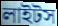
লাইটস